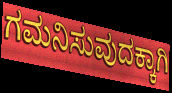
ಗಮನಿಸುವುದಕ್ಕಾಗಿ